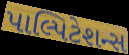
પાલ્પિટેશન્સ